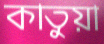
কাতুয়া